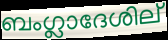
ബംഗ്ലാദേശില്